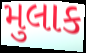
મુલાક